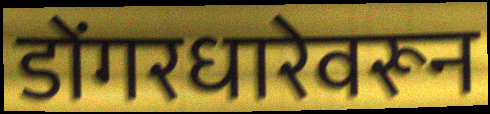
डोंगरधारेवरून